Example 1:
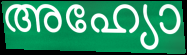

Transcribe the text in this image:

അഹ്യോ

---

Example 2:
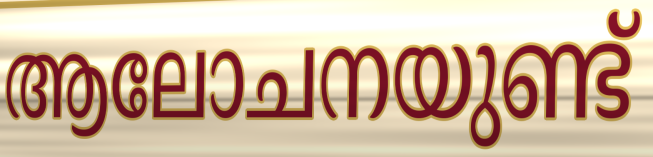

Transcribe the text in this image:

ആലോചനയുണ്ട്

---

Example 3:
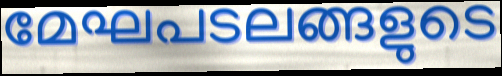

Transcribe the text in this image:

മേഘപടലങ്ങളുടെ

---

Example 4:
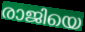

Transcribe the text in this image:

രാജിയെ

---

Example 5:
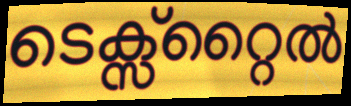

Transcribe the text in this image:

ടെക്സ്റ്റൈൽ